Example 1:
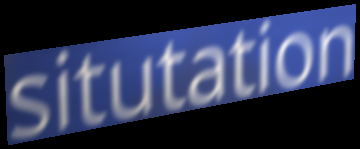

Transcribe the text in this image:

situtation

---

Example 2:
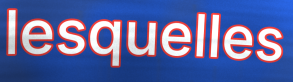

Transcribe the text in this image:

lesquelles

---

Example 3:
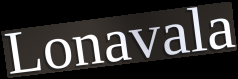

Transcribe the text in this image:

Lonavala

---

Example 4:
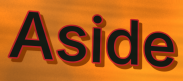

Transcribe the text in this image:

Aside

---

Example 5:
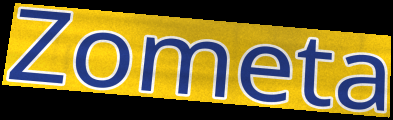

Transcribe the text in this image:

Zometa